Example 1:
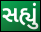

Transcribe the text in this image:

સહ્યું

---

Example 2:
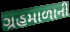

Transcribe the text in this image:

ગ્રહમાળાની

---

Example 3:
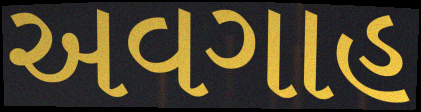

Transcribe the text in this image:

અવગાહ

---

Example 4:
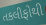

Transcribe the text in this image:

તકલીફોથી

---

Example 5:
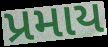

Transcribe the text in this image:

પ્રમાય